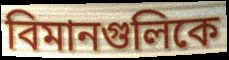
বিমানগুলিকে